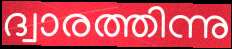
ദ്വാരത്തിന്നു